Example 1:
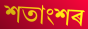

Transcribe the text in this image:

শতাংশৰ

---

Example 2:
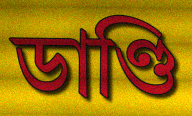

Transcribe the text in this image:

ডাণ্ডি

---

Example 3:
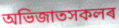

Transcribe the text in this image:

অভিজাতসকলৰ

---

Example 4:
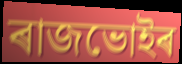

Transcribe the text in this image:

ৰাজভোইৰ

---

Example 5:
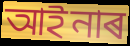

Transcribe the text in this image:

আইনাৰ